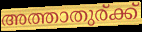
അത്താതുര്ക്ക്